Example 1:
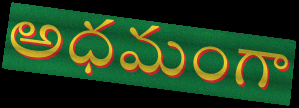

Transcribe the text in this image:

అధమంగా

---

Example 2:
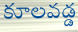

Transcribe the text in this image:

కూలవడ్డ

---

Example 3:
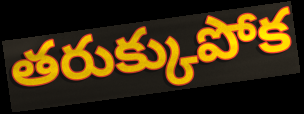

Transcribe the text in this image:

తరుక్కుపోక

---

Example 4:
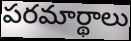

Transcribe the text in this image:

పరమార్థాలు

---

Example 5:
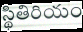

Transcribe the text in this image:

స్థితిరియం